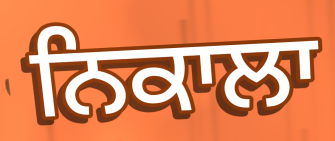
ਨਿਕਾਲਾ